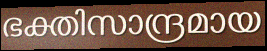
ഭക്തിസാന്ദ്രമായ